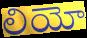
లియో